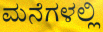
ಮನೆಗಳಲ್ಲಿ